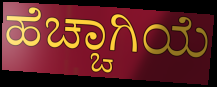
ಹೆಚ್ಚಾಗಿಯೆ